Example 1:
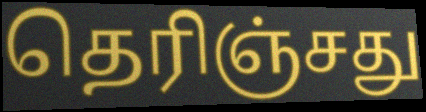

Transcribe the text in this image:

தெரிஞ்சது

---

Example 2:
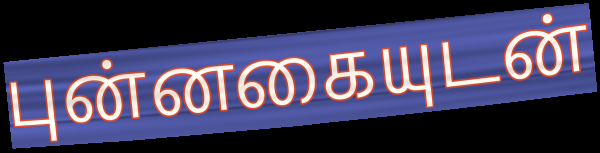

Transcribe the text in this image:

புன்னகையுடன்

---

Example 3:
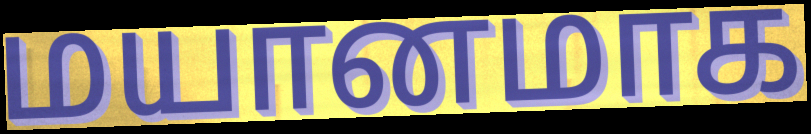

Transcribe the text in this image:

மயானமாக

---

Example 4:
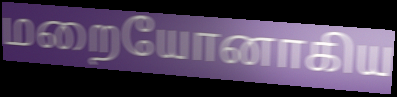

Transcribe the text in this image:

மறையோனாகிய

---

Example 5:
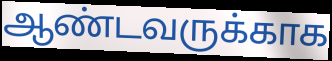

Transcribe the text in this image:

ஆண்டவருக்காக